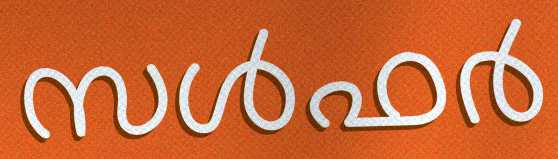
സൾഫർ